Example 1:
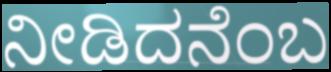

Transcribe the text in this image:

ನೀಡಿದನೆಂಬ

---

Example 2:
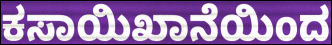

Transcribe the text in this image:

ಕಸಾಯಿಖಾನೆಯಿಂದ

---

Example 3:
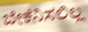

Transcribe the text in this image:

ಬೇಕೆನಿಸಲಿಲ್ಲ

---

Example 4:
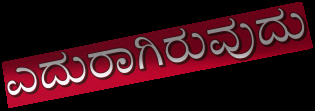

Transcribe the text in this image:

ಎದುರಾಗಿರುವುದು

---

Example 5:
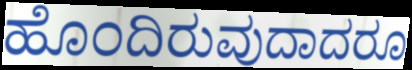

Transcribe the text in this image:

ಹೊಂದಿರುವುದಾದರೂ